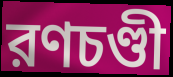
রণচণ্ডী